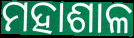
ମହାଶାଳ